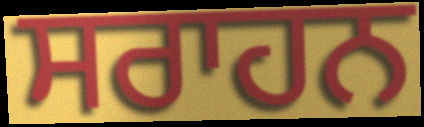
ਸਰਾਹਨ